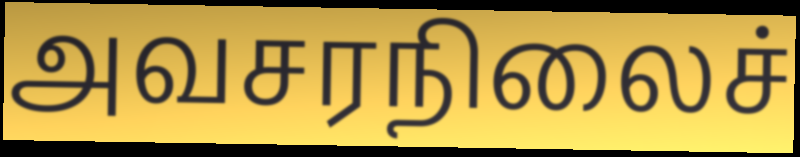
அவசரநிலைச்